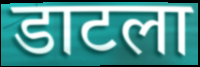
डाटला